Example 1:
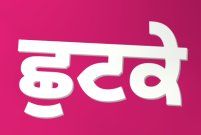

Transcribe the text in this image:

ਛੁਟਕੇ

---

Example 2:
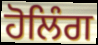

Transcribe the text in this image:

ਹੋਲਿੰਗ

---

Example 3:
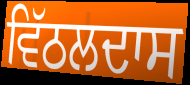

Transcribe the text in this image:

ਵਿੱਠਲਦਾਸ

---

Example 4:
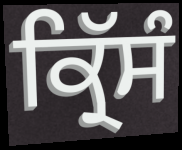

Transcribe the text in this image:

ਕ੍ਰਿੱਸੰ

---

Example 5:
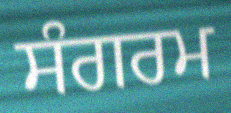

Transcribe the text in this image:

ਸੰਗਰਮ